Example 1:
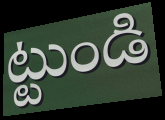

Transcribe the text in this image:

ట్టుండి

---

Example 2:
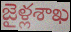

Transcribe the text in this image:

జైళ్లశాఖ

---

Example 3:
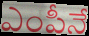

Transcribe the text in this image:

ఎంపీనే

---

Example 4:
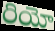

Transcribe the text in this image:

రియో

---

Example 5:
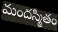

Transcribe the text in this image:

మందస్మితం